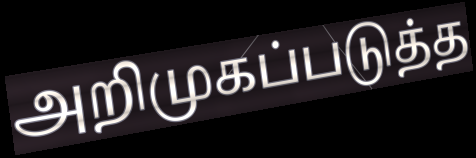
அறிமுகப்படுத்த